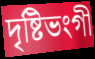
দৃষ্টিভংগী